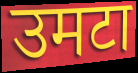
उमटा